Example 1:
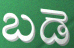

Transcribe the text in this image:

బడె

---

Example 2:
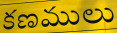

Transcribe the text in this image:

కణములు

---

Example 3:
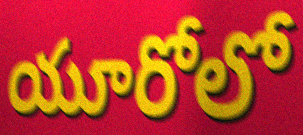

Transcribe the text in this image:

యూరోలో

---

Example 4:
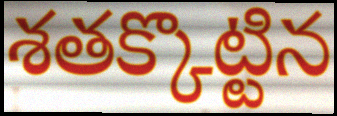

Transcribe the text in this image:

శతక్కొట్టిన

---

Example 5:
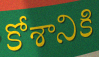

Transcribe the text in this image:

కోశానికి